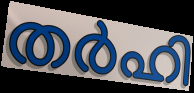
തർഹി